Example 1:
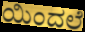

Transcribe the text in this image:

ಯಿಂದಲೆ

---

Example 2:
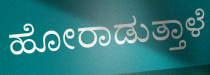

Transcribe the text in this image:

ಹೋರಾಡುತ್ತಾಳೆ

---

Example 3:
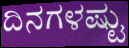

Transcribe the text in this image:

ದಿನಗಳಷ್ಟು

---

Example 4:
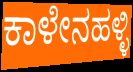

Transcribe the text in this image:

ಕಾಳೇನಹಳ್ಳಿ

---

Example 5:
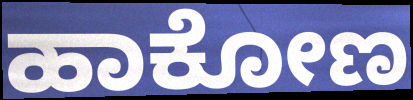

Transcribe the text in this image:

ಹಾಕೋಣ